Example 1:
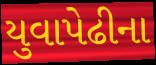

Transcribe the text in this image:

યુવાપેઢીના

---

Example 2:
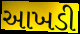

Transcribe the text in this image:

આખડી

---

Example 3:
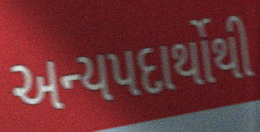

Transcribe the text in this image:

અન્યપદાર્થોથી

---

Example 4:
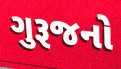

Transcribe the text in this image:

ગુરૂજનો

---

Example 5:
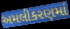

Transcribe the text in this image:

અમલીકરણમાં